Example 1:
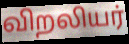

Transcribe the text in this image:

விறலியர்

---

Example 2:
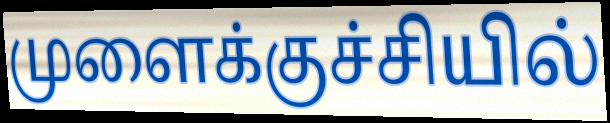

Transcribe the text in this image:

முளைக்குச்சியில்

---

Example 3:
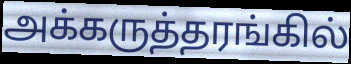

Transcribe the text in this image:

அக்கருத்தரங்கில்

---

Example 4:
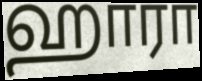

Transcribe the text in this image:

ஹாரா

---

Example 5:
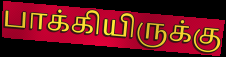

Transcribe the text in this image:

பாக்கியிருக்கு